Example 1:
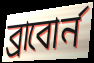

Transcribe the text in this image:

ব্রাবোর্ন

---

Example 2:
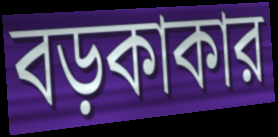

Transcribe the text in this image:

বড়কাকার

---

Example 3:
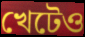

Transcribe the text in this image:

খেটেও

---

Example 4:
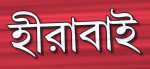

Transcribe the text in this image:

হীরাবাই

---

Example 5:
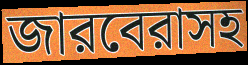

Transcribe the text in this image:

জারবেরাসহ